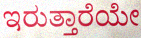
ಇರುತ್ತಾರೆಯೇ